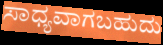
ಸಾಧ್ಯವಾಗಬಹುದು